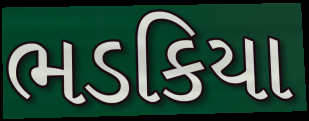
ભડકિયા